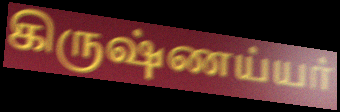
கிருஷ்ணய்யர்